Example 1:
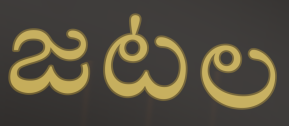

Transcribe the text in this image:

జటల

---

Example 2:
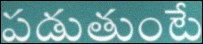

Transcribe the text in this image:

పడుతుంటే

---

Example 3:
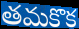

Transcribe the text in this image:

తమకొక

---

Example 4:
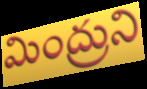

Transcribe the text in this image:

మింద్రుని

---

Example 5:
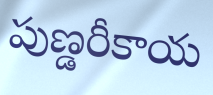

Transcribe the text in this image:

పుణ్డరీకాయ